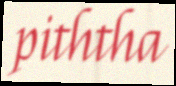
piththa